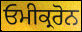
ਓਮੀਕ੍ਰਰੋਨ